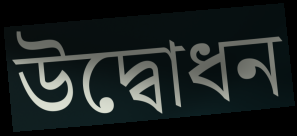
উদ্বোধন